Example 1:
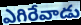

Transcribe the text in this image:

ఎగిరేవాడు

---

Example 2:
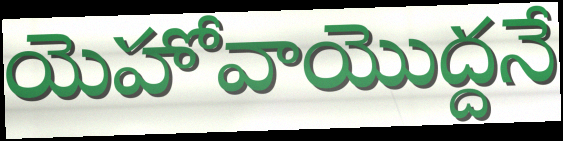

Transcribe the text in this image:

యెహోవాయొద్దనే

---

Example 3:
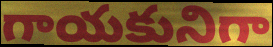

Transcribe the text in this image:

గాయకునిగా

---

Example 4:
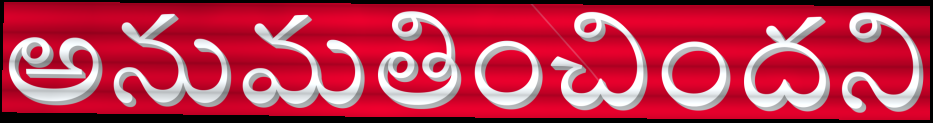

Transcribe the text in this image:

అనుమతించిందని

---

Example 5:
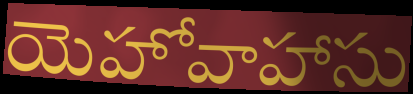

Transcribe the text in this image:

యెహోవాహాసు